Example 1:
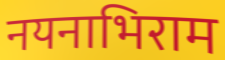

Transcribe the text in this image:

नयनाभिराम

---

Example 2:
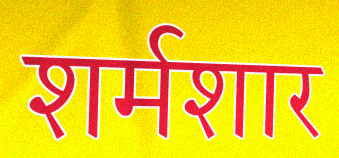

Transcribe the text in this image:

शर्मशार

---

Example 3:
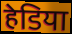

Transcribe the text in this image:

हेडिया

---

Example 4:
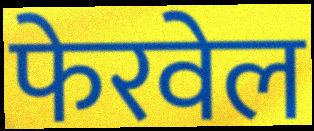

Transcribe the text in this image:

फेरवेल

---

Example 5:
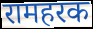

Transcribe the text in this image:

रामहरक